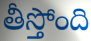
తీస్తోంది